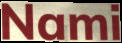
Nami